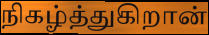
நிகழ்த்துகிறான்